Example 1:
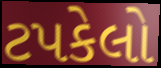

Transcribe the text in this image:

ટપકેલો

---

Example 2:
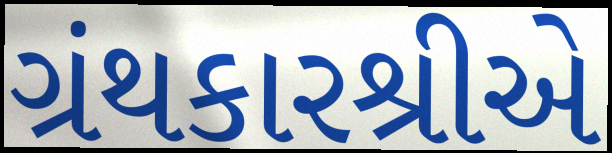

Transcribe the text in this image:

ગ્રંથકારશ્રીએ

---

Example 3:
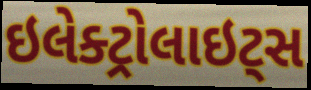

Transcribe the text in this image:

ઇલેક્ટ્રોલાઇટ્સ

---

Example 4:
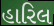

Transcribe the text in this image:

હારિલ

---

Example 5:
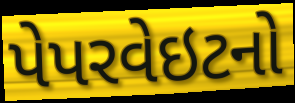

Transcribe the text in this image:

પેપરવેઇટનો